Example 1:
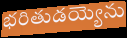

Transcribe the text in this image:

భరితుడయ్యెను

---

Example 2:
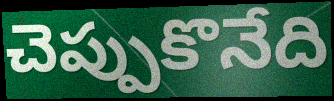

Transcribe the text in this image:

చెప్పుకొనేది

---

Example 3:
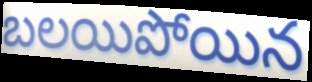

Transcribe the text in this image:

బలయిపోయిన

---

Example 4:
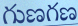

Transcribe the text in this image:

గుణగణ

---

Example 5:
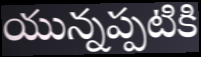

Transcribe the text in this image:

యున్నప్పటికి